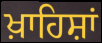
ਖ਼ਾਹਿਸ਼ਾਂ